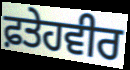
ਫ਼ਤੇਹਵੀਰ